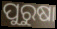
ପୁରୁଷା